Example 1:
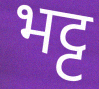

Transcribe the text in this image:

भट्ट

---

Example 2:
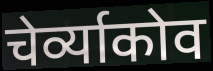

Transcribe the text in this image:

चेर्व्याकोव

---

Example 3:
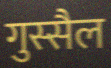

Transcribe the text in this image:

गुस्सैल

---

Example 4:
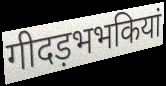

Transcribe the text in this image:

गीदड़भभकियां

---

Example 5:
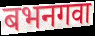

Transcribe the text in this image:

बभनगवा